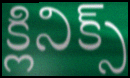
క్లినిక్స్